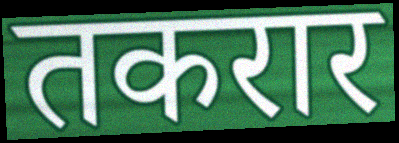
तकरार